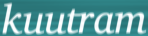
kuutram